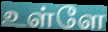
உள்ளே